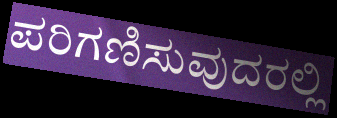
ಪರಿಗಣಿಸುವುದರಲ್ಲಿ